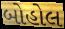
બોહોલ